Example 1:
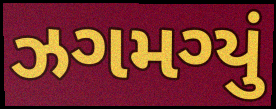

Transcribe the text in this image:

ઝગમગ્યું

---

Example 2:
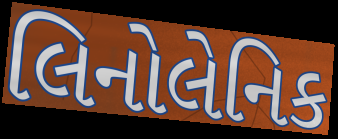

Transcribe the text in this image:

લિનોલેનિક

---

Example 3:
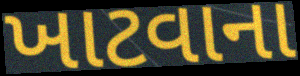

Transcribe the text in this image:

ખાટવાના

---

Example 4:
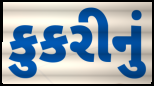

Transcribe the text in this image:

કુકરીનું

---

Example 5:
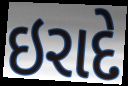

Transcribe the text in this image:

ઇરાદે